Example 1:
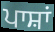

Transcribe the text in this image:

ਪਾਸ਼ਾਂ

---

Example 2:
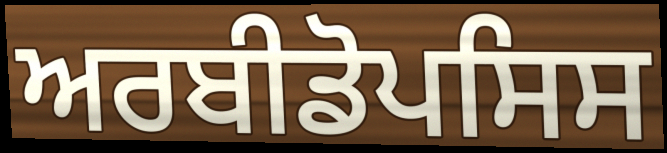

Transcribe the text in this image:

ਅਰਬੀਡੋਪਸਿਸ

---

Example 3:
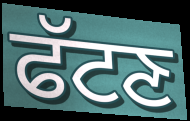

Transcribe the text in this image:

ਫੱਟਣ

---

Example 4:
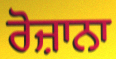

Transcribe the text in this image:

ਰੋਜ਼ਾਨਾ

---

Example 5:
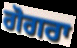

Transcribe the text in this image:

ਗੋਗਰਾ